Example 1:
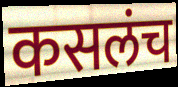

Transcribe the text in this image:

कसलंच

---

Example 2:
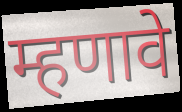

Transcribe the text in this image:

म्हणावे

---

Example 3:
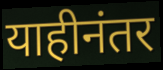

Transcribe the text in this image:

याहीनंतर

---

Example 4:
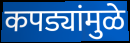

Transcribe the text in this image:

कपड्यांमुळे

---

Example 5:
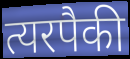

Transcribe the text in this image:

त्यरपैकी